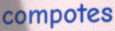
compotes